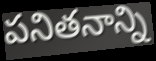
పనితనాన్ని